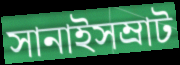
সানাইসম্রাট